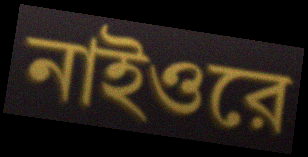
নাইওরে